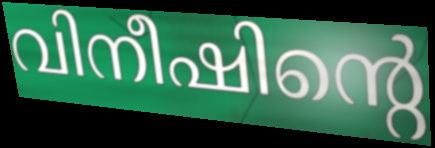
വിനീഷിന്റെ